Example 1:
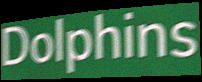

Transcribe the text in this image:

Dolphins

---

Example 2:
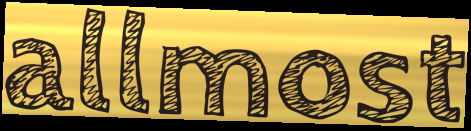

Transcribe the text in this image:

allmost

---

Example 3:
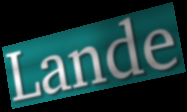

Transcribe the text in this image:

Lande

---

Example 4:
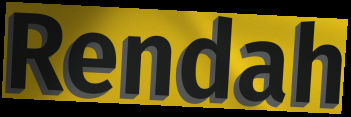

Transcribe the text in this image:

Rendah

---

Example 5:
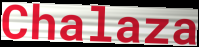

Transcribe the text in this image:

Chalaza